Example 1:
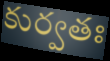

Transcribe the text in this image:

కుర్వతః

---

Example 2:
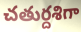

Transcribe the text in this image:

చతుర్దశిగా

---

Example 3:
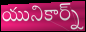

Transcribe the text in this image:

యునికార్న్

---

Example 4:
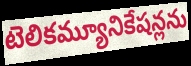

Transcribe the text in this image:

టెలికమ్యూనికేషన్లను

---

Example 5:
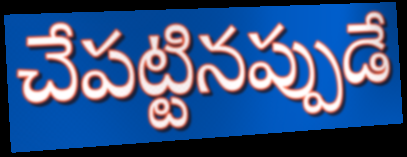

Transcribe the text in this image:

చేపట్టినప్పుడే